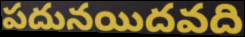
పదునయిదవది